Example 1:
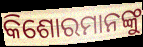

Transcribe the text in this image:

କିଶୋରମାନଙ୍କୁ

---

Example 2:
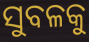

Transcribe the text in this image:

ସୁବଳକୁ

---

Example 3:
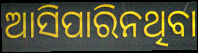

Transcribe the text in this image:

ଆସିପାରିନଥିବା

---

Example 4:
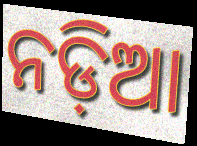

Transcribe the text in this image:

ନଡ଼ିଆ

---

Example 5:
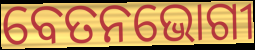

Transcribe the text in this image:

ବେତନଭୋଗୀ